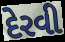
દેરવી